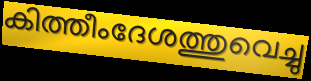
കിത്തീംദേശത്തുവെച്ചു